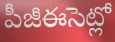
పీజీఈసెట్లో